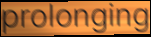
prolonging